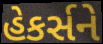
હેકર્સને